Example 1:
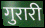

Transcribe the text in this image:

गुरारी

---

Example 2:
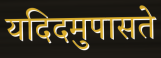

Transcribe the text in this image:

यदिदमुपासते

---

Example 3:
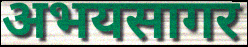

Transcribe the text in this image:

अभयसागर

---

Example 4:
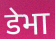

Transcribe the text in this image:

डेभा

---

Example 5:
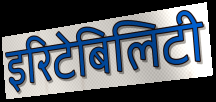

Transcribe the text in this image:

इरिटेबिलिटी